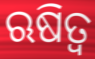
ଋଷିତ୍ୱ